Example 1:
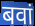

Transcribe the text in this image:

बवां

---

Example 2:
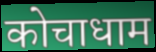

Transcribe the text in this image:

कोचाधाम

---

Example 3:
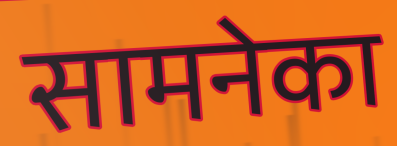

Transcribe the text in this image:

सामनेका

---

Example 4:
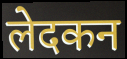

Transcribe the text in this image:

लेदकन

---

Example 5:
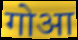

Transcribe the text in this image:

गोआ